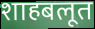
शाहबलूत